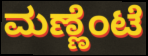
ಮಣ್ಣೆಂಟೆ